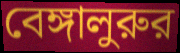
বেঙ্গালুরুর